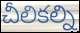
చీలికల్ని